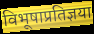
विभूषाप्रतिज्ञया